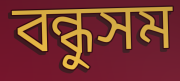
বন্ধুসম